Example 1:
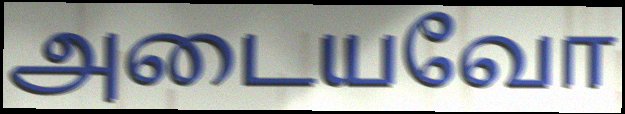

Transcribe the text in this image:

அடையவோ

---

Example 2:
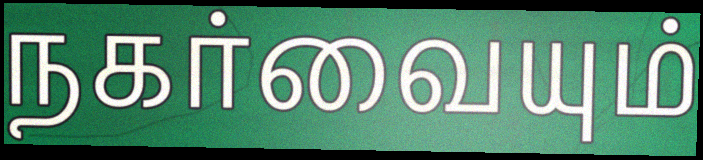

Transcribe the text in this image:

நகர்வையும்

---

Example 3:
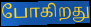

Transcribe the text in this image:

போகிறது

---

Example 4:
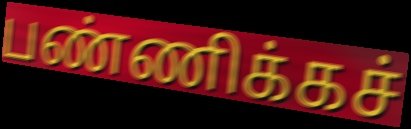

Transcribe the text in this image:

பண்ணிக்கச்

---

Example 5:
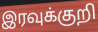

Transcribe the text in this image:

இரவுக்குறி